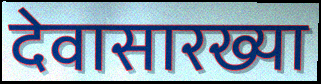
देवासारख्या